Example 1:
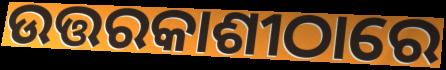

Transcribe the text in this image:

ଉତ୍ତରକାଶୀଠାରେ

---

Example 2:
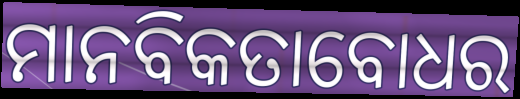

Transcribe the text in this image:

ମାନବିକତାବୋଧର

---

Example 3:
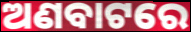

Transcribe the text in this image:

ଅଣବାଟରେ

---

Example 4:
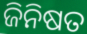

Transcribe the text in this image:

ଜିନିଷତ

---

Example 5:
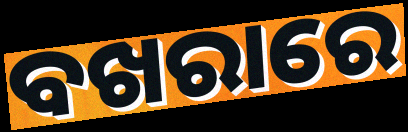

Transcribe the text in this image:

ବଖରାରେ